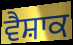
ਵੈਸ਼ਾਕ